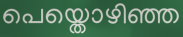
പെയ്തൊഴിഞ്ഞ